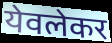
येवलेकर